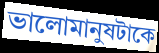
ভালোমানুষটাকে